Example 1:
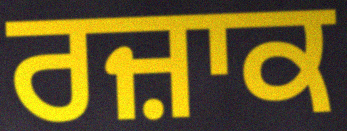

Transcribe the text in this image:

ਰਜ਼ਾਕ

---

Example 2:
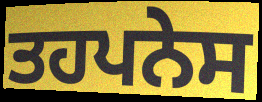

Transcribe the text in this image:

ਤਹਪਨੇਸ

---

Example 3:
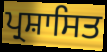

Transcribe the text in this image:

ਪ੍ਰਸ਼ਾਸਿਤ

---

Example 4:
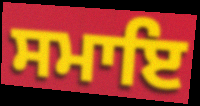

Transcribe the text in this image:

ਸਮਾਇ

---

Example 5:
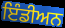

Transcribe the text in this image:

ਇੰਡੀਅਨ